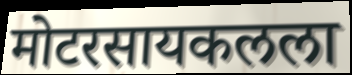
मोटरसायकलला